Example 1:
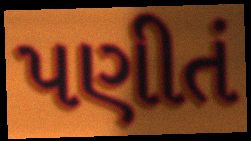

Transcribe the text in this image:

પણીતં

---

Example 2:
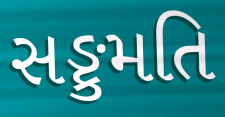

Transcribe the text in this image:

સઙ્કમતિ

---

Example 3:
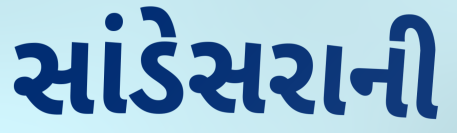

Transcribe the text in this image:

સાંડેસરાની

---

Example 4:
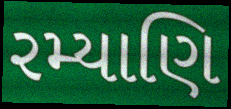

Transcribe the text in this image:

રમ્યાણિ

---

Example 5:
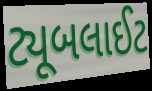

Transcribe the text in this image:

ટ્યૂબલાઈટ